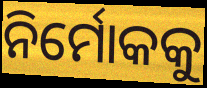
ନିର୍ମୋକକୁ